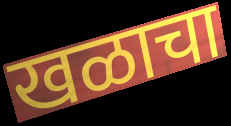
खळाचा